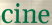
cine